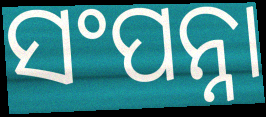
ସଂପନ୍ନା